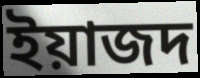
ইয়াজদ